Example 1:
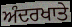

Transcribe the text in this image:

ਅੰਦਰਖਾਤੇ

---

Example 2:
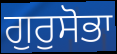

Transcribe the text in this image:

ਗੁਰੁਸੋਭਾ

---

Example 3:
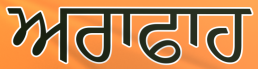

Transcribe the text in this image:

ਅਰਾਫਾਹ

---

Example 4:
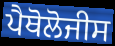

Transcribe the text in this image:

ਪੈਥੋਲੋਜੀਸ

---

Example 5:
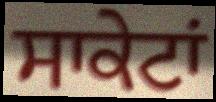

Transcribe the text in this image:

ਸਾਕੇਟਾਂ